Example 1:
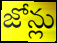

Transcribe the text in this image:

జోన్లు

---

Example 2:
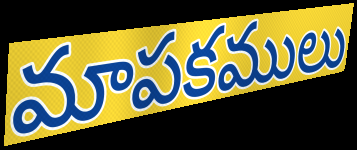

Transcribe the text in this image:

మాపకములు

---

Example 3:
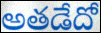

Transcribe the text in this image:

అతడేదో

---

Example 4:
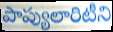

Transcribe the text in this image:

పాప్యులారిటీని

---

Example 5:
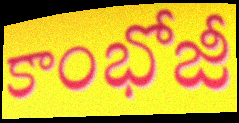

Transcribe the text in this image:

కాంభోజీ